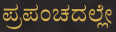
ಪ್ರಪಂಚದಲ್ಲೇ